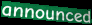
announced